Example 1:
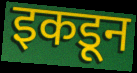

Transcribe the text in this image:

इकडून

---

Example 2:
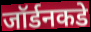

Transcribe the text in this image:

जॉर्डनकडे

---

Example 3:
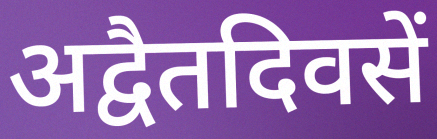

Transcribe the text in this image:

अद्वैतदिवसें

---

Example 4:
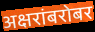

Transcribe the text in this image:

अक्षरांबरोबर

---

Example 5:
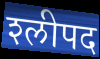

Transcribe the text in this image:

श्लीपद